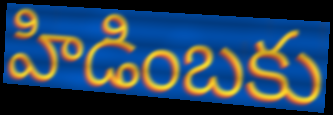
హిడింబకు